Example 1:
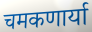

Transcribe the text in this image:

चमकणार्या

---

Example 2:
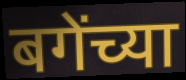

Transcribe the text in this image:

बगेंच्या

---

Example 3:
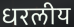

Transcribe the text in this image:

धरलीय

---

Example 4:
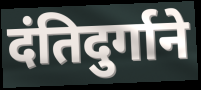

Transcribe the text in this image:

दंतिदुर्गाने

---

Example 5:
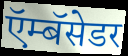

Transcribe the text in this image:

ऍम्बॅसेडर